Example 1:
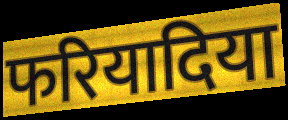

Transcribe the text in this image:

फरियादिया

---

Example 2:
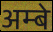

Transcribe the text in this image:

अम्बे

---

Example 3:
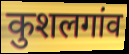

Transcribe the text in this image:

कुशलगांव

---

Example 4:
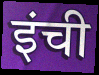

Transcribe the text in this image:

इंची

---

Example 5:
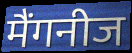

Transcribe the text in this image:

मैंगनीज